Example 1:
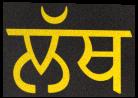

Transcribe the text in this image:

ਲੱਥ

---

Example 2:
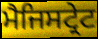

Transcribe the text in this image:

ਮੈਜਿਸਟ੍ਰੇਟ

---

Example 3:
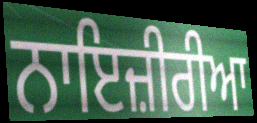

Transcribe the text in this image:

ਨਾਇਜ਼ੀਰੀਆ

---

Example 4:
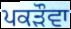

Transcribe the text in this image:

ਪਕੜੌਵਾ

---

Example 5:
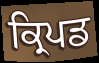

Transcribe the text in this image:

ਕ੍ਰਿਪਡ